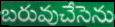
బరువుచేసెను